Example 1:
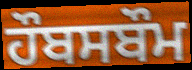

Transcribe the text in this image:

ਹੌਬਸਬੌਮ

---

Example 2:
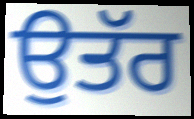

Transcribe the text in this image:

ਉਤੱਰ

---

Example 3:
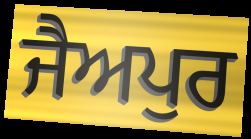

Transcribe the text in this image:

ਜੈਅਪੁਰ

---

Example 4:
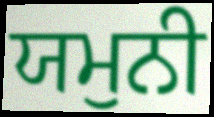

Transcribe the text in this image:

ਯਮੁਨੀ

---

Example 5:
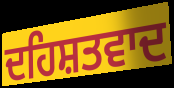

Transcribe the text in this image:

ਦਹਿਸ਼ਤਵਾਦ